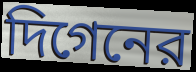
দিগেনের